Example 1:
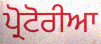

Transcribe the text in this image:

ਪ੍ਰੋਟੋਰੀਆ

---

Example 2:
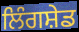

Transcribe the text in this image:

ਲਿੰਗਸ਼ੇਡ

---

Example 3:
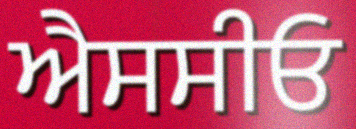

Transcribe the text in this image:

ਐਸਸੀਓ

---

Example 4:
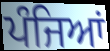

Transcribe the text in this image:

ਪੰਜਿਆਂ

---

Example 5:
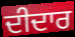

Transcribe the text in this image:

ਦੀਦਾਰ